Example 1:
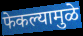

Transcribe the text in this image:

फेकल्यामुळे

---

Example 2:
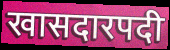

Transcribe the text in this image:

खासदारपदी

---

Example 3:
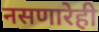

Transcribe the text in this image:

नसणारेही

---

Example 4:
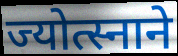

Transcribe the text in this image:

ज्योत्स्नाने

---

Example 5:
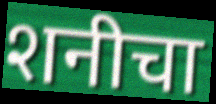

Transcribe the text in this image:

शनीचा